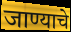
जाण्याचे